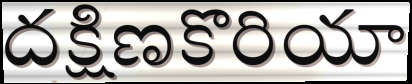
దక్షిణకొరియా